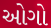
ઓગો